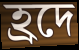
হ্রদে